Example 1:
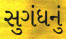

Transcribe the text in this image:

સુગંધનું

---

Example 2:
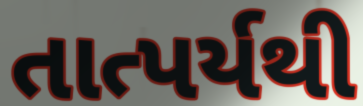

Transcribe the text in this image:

તાત્પર્યથી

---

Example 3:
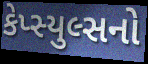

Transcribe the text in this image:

કેપ્સ્યુલ્સનો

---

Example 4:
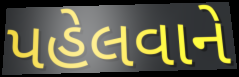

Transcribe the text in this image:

પહેલવાને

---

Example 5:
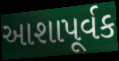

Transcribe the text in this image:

આશાપૂર્વક